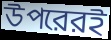
উপরেরই